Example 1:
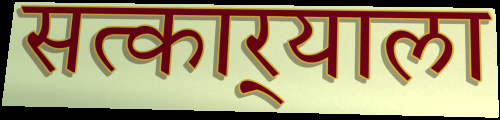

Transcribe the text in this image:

सत्कार्याला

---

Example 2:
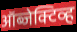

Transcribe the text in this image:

ऑब्जेक्टिव्ह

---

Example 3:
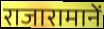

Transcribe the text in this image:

राजारामानें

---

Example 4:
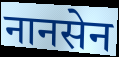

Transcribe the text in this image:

नानसेन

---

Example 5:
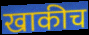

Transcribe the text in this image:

खाकीच